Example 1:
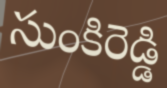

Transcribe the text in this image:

సుంకిరెడ్డి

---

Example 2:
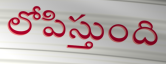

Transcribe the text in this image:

లోపిస్తుంది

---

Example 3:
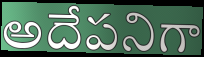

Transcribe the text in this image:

అదేపనిగా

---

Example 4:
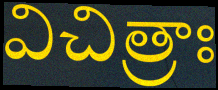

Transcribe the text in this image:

విచిత్రాః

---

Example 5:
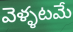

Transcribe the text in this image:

వెళ్ళటమే